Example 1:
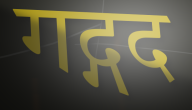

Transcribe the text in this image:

गद्गद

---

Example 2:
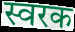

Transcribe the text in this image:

स्वरक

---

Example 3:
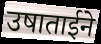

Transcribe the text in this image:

उषाताईने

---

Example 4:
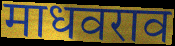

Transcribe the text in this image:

माधवराव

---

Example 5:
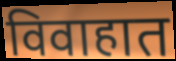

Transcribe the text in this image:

विवाहात